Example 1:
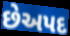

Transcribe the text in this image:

છેઅપદ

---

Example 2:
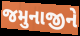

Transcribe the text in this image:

જમુનાજીને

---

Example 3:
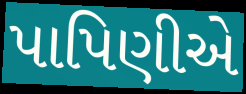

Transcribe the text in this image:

પાપિણીએ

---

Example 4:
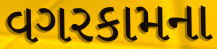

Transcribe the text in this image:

વગરકામના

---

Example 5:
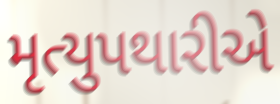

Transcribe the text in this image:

મૃત્યુપથારીએ